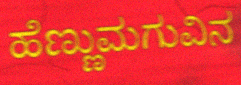
ಹೆಣ್ಣುಮಗುವಿನ